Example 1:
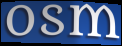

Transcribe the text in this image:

osm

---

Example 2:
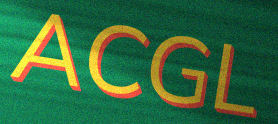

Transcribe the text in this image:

ACGL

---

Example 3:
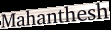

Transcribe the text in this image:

Mahanthesh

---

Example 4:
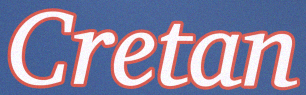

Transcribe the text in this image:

Cretan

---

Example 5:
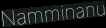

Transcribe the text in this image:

Namminanu